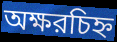
অক্ষরচিহ্ন